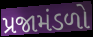
પ્રજામંડળો